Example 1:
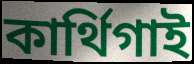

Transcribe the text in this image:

কার্থিগাই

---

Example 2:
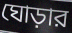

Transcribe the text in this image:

ঘোড়ার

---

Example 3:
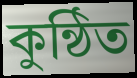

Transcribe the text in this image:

কুন্ঠিত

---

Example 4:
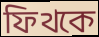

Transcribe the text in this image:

ফিথকে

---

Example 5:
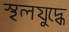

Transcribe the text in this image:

স্থলযুদ্ধে